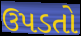
ઉપડતો